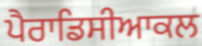
ਪੈਰਾਡਿਸੀਆਕਲ